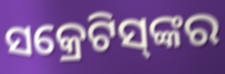
ସକ୍ରେଟିସ୍‌ଙ୍କର